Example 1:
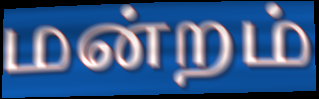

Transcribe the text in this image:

மன்றம்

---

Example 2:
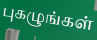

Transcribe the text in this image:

புகழுங்கள்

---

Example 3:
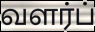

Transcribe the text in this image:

வளர்ப்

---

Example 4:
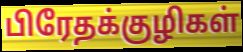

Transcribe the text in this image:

பிரேதக்குழிகள்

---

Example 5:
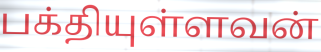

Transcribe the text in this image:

பக்தியுள்ளவன்